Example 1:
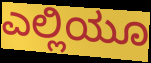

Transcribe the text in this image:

ಎಲ್ಲಿಯೂ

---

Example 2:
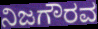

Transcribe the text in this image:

ನಿಜಗೌರವ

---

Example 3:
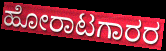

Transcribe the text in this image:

ಹೋರಾಟಗಾರರ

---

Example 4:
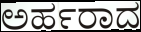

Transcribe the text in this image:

ಅರ್ಹರಾದ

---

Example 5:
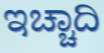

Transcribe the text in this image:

ಇಚ್ಚಾದಿ